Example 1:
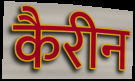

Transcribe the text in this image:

कैरीन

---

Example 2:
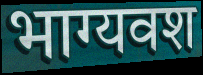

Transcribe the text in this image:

भाग्यवश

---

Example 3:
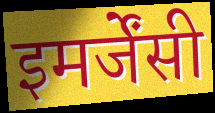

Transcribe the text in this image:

इमर्जेंसी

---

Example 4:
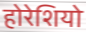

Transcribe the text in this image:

होरेशियो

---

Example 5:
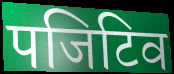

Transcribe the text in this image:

पजिटिव